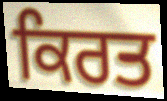
ਕਿਰਤ